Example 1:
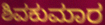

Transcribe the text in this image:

ಶಿವಕುಮಾರ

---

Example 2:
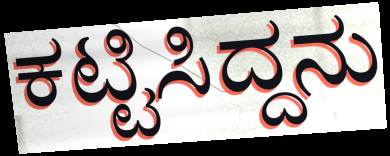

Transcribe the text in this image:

ಕಟ್ಟಿಸಿದ್ದನು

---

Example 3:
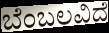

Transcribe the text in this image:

ಬೆಂಬಲವಿದೆ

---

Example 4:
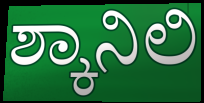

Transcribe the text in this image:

ಶ್ಕಾನಿಲಿ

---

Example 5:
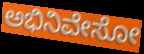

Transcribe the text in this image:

ಅಭಿನಿವೇಸೋ